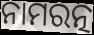
ନାମରତ୍ନ